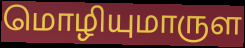
மொழியுமாருள